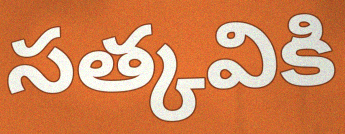
సత్కవికి